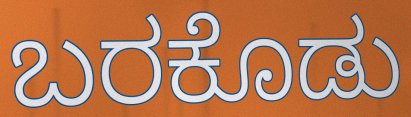
ಬರಕೊಡು